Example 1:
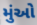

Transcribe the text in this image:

મુંઓ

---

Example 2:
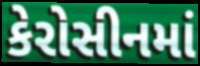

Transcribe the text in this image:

કેરોસીનમાં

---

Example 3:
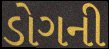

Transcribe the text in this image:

ડોગની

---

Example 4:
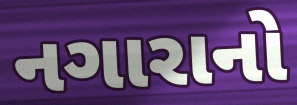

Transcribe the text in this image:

નગારાનો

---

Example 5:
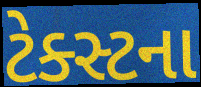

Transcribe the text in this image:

ટેક્સ્ટના